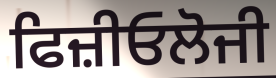
ਫਿਜ਼ੀਓਲੋਜੀ